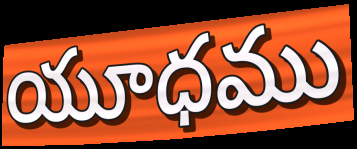
యూధము